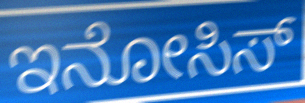
ಇನೋಸಿಸ್